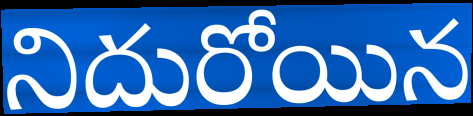
నిదురోయిన